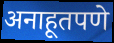
अनाहूतपणे